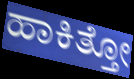
ಹಾಕಿತ್ತೋ